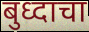
बुध्दाचा